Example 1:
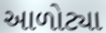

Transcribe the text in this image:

આળોટ્યા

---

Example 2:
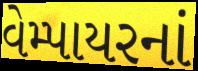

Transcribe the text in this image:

વેમ્પાયરનાં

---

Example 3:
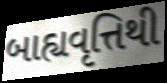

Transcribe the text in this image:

બાહ્યવૃત્તિથી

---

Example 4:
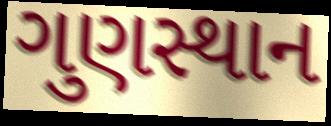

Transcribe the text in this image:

ગુણસ્થાન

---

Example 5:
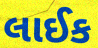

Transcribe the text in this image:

લાઈક